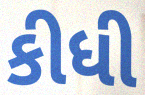
કીધી